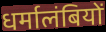
धर्मालंबियों